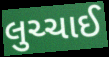
લુચ્ચાઈ